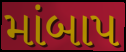
માંબાપ